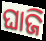
ଘାଜି